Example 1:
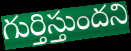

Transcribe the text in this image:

గుర్తిస్తుందని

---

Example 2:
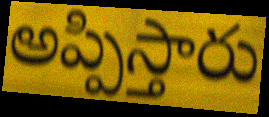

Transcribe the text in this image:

అప్పిస్తారు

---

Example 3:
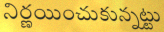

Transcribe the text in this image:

నిర్ణయించుకున్నట్టు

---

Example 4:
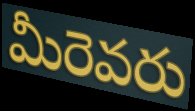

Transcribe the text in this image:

మీరెవరు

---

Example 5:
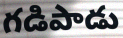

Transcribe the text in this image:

గడిపాడు